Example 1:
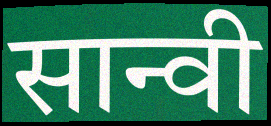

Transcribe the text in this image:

सान्वी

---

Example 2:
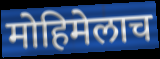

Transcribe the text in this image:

मोहिमेलाच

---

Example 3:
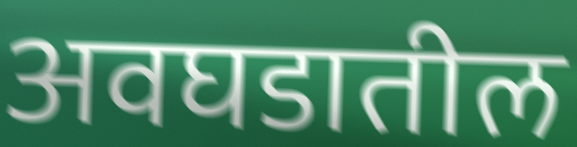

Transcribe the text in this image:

अवघडातील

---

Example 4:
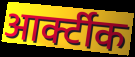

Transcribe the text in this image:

आर्क्टीक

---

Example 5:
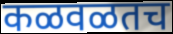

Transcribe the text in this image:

कळवळतच